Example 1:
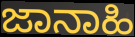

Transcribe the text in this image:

ಜಾನಾಹಿ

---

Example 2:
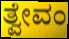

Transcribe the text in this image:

ತ್ವೇವಂ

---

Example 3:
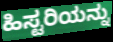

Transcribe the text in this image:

ಹಿಸ್ಟರಿಯನ್ನು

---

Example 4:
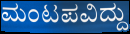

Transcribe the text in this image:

ಮಂಟಪವಿದ್ದು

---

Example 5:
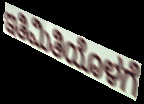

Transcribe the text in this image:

ಇತಿಮಿತಿಯೊಳಗೆ